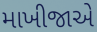
માખીજાએ